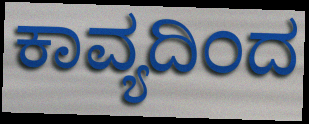
ಕಾವ್ಯದಿಂದ